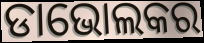
ଡାଭୋଲକର